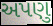
અપણુ